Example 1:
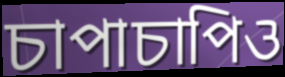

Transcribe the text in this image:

চাপাচাপিও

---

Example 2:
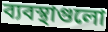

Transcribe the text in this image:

ব্যবস্থাগুলো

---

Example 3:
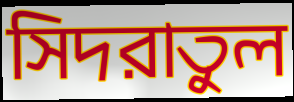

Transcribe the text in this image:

সিদরাতুল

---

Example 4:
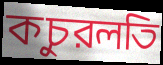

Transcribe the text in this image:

কচুরলতি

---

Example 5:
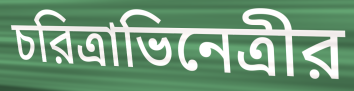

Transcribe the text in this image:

চরিত্রাভিনেত্রীর